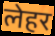
लेहर